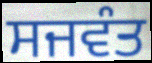
ਸਜਵੰਤ